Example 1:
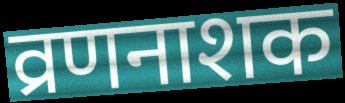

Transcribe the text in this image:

व्रणनाशक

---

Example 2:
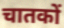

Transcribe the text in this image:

चातकों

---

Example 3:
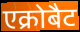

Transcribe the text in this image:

एक्रोबैट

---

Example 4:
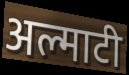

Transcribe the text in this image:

अल्माटी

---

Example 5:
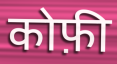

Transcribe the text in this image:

कोफ़ी